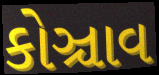
કોઞ્ચાવ